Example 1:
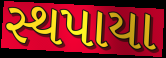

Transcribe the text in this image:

સ્થપાયા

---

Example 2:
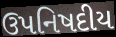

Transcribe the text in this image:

ઉપનિષદીય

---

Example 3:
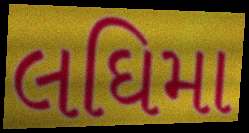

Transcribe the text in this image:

લઘિમા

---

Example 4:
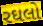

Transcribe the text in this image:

રઘલો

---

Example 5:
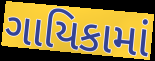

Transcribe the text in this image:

ગાયિકામાં